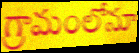
గ్రామంలోనూ